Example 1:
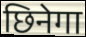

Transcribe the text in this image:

छिनेगा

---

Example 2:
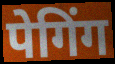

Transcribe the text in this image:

पेगिंग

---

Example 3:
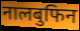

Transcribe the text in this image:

नालबुफिन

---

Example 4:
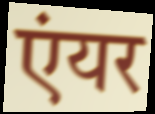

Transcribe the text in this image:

एंयर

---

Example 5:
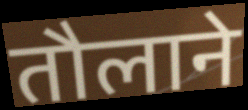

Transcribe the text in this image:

तौलाने